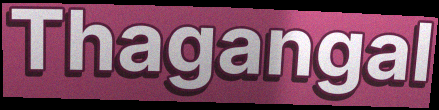
Thagangal